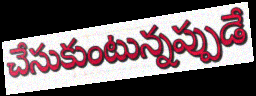
చేసుకుంటున్నప్పుడే